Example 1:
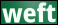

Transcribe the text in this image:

weft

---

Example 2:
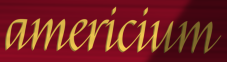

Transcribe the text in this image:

americium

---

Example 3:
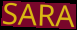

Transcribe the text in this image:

SARA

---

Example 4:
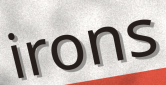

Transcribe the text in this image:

irons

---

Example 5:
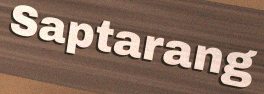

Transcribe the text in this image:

Saptarang